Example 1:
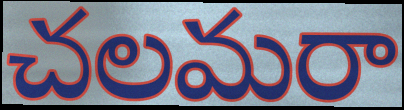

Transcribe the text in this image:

చలమరా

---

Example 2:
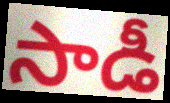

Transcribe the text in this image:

సాడీ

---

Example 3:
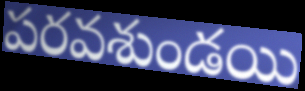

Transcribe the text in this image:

పరవశుండయి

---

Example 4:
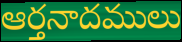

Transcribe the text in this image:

ఆర్తనాదములు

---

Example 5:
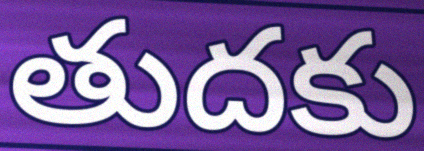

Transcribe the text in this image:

తుదకు